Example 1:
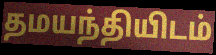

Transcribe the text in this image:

தமயந்தியிடம்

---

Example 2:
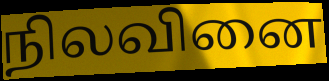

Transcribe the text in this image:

நிலவினை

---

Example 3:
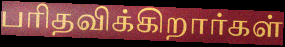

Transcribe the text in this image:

பரிதவிக்கிறார்கள்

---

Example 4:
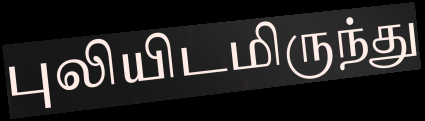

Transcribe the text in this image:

புலியிடமிருந்து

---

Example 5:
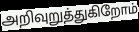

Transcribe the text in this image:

அறிவுறுத்துகிறோம்